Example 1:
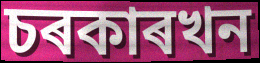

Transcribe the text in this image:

চৰকাৰখন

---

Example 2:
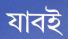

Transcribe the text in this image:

যাবই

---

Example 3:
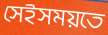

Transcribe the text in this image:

সেইসময়তে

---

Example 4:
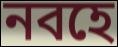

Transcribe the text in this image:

নবহে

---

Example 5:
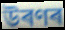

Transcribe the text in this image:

উৰণৰ